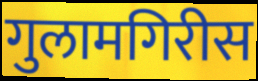
गुलामगिरीस